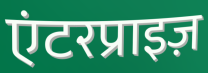
एंटरप्राइज़